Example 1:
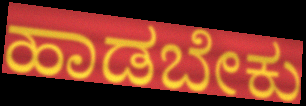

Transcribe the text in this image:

ಹಾಡಬೇಕು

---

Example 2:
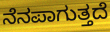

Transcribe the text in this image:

ನೆನಪಾಗುತ್ತದೆ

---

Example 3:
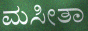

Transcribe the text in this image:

ಮಸೀತಾ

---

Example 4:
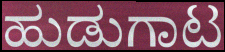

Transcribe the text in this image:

ಹುಡುಗಾಟ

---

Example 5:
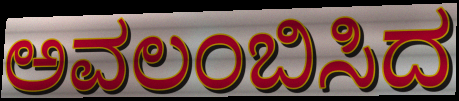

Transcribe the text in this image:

ಅವಲಂಬಿಸಿದ